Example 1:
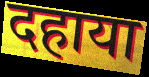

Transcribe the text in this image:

दहाया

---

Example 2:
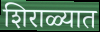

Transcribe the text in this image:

शिराळ्यात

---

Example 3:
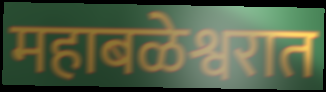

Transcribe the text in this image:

महाबळेश्वरात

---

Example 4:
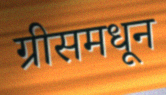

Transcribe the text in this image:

ग्रीसमधून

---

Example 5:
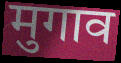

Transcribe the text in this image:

मुगाव